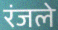
रंजले